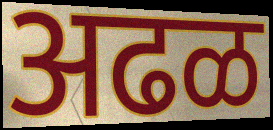
अढळ